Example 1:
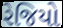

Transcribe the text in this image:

રેજિયો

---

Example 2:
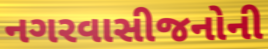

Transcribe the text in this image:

નગરવાસીજનોની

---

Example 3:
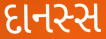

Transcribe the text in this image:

દાનસ્સ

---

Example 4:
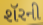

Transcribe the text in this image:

શૅરની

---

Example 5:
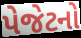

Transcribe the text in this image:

પેજેટનો